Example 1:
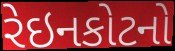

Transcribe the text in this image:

રેઇનકોટનો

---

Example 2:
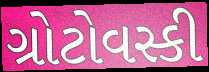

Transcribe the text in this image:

ગ્રોટોવસ્કી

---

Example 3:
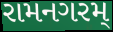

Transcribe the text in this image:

રામનગરમ્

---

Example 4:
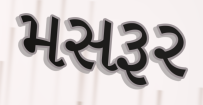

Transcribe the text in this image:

મસરૂર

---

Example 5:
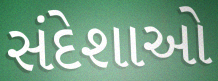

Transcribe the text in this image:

સંદેશાઓ